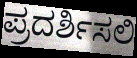
ಪ್ರದರ್ಶಿಸಲಿ